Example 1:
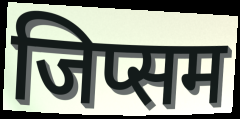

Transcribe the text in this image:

जिप्सम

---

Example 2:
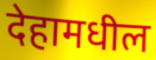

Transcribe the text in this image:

देहामधील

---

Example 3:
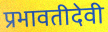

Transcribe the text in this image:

प्रभावतीदेवी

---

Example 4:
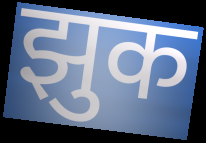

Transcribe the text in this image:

झुक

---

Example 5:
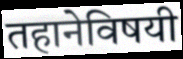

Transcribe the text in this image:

तहानेविषयी